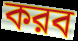
করব